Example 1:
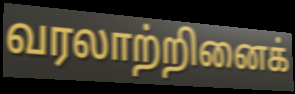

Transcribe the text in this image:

வரலாற்றினைக்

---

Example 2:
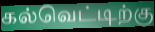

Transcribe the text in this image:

கல்வெட்டிற்கு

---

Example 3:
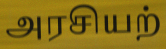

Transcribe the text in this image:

அரசியற்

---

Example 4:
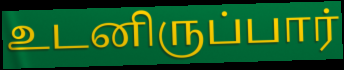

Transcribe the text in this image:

உடனிருப்பார்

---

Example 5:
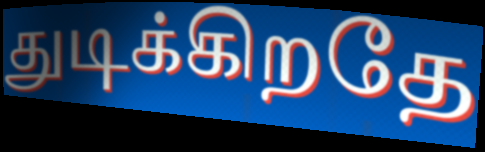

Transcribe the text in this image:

துடிக்கிறதே